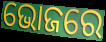
ଭୋଜରେ